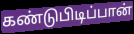
கண்டுபிடிப்பான்